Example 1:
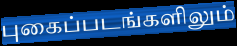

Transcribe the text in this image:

புகைப்படங்களிலும்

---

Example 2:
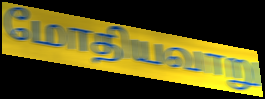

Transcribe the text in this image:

மோதியவாறு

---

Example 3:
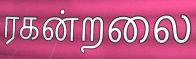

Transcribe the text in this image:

ரகன்றலை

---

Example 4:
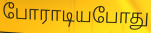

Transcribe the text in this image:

போராடியபோது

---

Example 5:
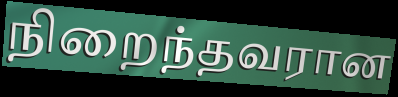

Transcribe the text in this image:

நிறைந்தவரான